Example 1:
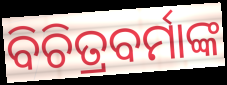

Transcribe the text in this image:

ବିଚିତ୍ରବର୍ମାଙ୍କ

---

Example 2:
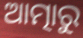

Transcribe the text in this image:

ଆତ୍ମାରୁ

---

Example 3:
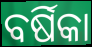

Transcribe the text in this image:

ବର୍ଷିକା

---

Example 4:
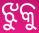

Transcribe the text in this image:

ଝୁକୁ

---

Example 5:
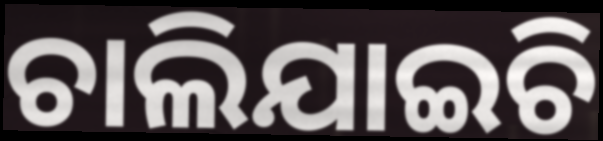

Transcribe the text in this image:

ଚାଲିଯାଇଚି